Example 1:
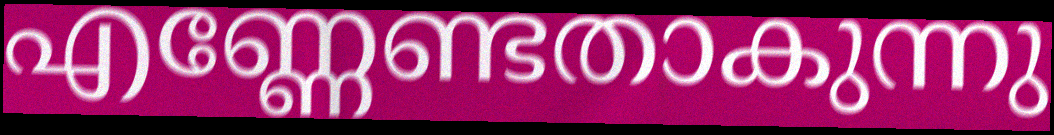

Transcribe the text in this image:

എണ്ണേണ്ടതാകുന്നു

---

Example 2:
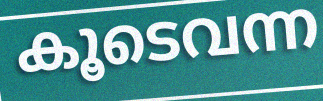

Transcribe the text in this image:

കൂടെവന്ന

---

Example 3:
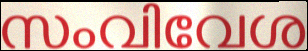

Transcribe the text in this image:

സംവിവേശ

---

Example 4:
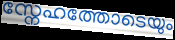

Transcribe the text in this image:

സ്നേഹത്തോടെയും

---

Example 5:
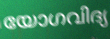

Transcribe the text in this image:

യോഗവിദ്യ